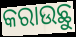
କରାଉଛୁ